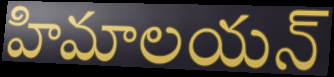
హిమాలయన్